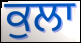
ਕੁਲਾ